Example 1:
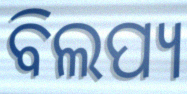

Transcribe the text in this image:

ବିଲପ୍ୟ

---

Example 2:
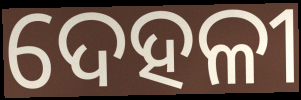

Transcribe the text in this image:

ଦେହଳୀ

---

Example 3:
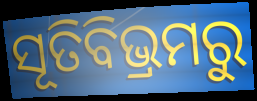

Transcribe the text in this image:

ସୂତିବିଭ୍ରମରୁ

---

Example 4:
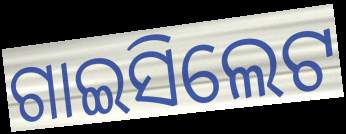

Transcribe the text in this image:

ଗାଇସିଲେଟ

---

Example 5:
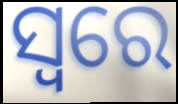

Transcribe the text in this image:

ସ୍ୱରେ